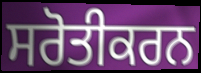
ਸਰੋਤੀਕਰਨ